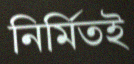
নির্মিতই